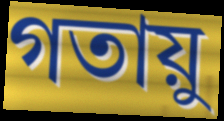
গতায়ু